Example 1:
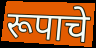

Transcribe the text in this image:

रूपाचे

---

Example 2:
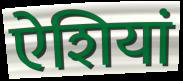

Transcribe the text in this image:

ऐशियां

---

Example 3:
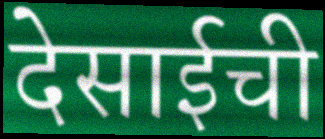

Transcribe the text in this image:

देसाईची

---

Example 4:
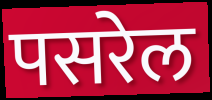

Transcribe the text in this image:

पसरेल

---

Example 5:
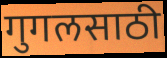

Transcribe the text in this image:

गुगलसाठी